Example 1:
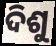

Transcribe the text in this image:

ଦିଶୁ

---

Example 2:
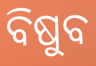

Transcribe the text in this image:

ବିଷୁବ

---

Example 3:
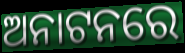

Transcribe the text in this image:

ଅନାଟନରେ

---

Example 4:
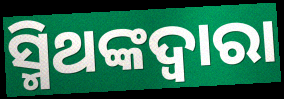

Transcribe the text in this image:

ସ୍ମିଥଙ୍କଦ୍ୱାରା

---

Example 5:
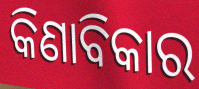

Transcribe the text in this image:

କିଣାବିକାର